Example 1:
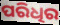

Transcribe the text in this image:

ପରିଧିର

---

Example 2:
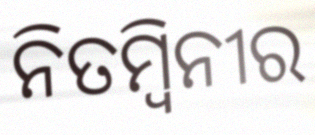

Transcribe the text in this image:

ନିତମ୍ବିନୀର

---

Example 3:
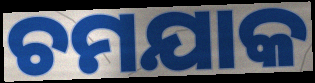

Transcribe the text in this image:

ଚମଯାକ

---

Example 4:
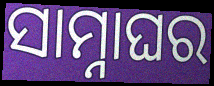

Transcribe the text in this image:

ସାମ୍ନାଘର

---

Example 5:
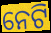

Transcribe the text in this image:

ନେଟି